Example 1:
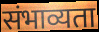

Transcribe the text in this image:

संभाव्यता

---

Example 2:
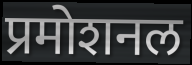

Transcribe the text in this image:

प्रमोशनल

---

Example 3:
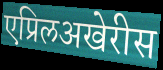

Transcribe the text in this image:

एप्रिलअखेरीस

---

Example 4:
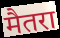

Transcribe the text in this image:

मैतरा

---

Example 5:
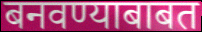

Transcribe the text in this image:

बनवण्याबाबत